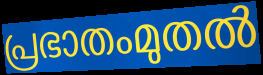
പ്രഭാതംമുതൽ